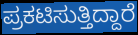
ಪ್ರಕಟಿಸುತ್ತಿದ್ದಾರೆ